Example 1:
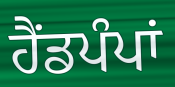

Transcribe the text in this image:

ਹੈਂਡਪੰਪਾਂ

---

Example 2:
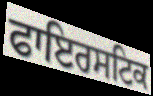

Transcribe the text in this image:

ਫਾਇਰਸਟਿਕ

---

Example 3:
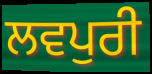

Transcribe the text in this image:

ਲਵਪੁਰੀ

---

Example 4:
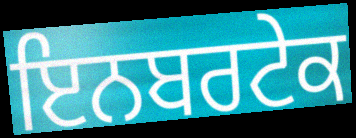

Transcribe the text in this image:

ਇਨਬਰਟੇਕ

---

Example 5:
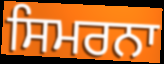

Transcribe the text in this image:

ਸਿਮਰਨਾ